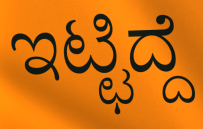
ಇಟ್ಟಿದ್ದೆ